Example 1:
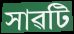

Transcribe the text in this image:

সাৱটি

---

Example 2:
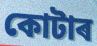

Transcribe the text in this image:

কোটাৰ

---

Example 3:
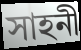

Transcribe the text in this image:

সাহনী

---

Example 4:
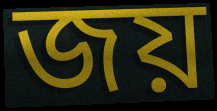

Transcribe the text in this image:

জয়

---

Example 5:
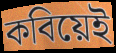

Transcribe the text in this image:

কবিয়েই